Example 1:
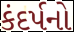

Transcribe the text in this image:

કંદર્પનો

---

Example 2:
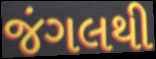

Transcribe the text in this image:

જંગલથી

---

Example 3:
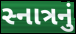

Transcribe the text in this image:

સ્નાત્રનું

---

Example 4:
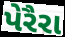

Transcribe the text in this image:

પેરૈરા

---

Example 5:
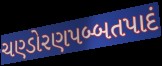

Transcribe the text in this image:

ચણ્ડોરણપબ્બતપાદં